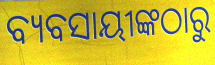
ବ୍ୟବସାୟୀଙ୍କଠାରୁ